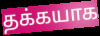
தக்கயாக